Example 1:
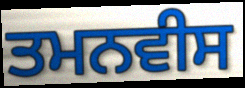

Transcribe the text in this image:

ਤਮਨਵੀਸ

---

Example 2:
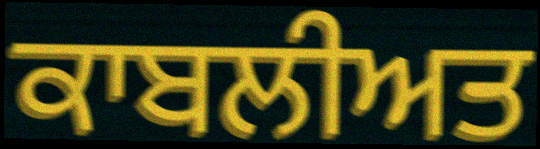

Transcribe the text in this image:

ਕਾਬਲੀਅਤ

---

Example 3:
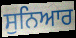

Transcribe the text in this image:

ਸੁਨਿਆਰ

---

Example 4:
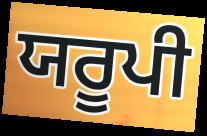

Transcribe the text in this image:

ਯਰੂਪੀ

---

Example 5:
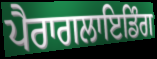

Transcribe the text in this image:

ਪੈਰਾਗਲਾਇਡਿੰਗ